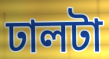
ঢালটা